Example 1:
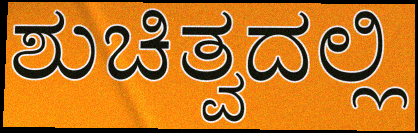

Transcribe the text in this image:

ಶುಚಿತ್ವದಲ್ಲಿ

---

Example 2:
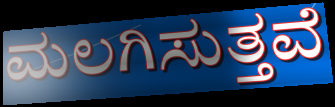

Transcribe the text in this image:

ಮಲಗಿಸುತ್ತವೆ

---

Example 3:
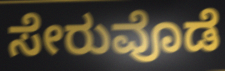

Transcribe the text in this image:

ಸೇರುವೊಡೆ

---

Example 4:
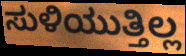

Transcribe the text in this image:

ಸುಳಿಯುತ್ತಿಲ್ಲ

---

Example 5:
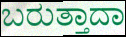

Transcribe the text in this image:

ಬರುತ್ತಾದಾ